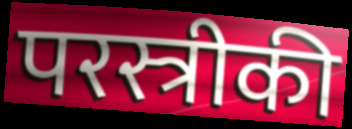
परस्त्रीकी